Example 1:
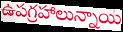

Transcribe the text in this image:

ఉపగ్రహాలున్నాయి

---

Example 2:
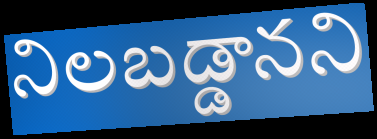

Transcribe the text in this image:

నిలబడ్డానని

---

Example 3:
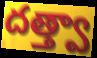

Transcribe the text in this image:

దత్త్వా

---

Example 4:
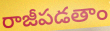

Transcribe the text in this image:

రాజీపడతాం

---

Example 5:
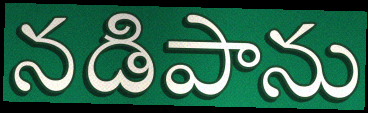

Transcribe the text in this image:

నడిపాను